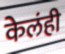
केलंही